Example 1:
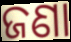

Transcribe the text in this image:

ଜଣା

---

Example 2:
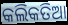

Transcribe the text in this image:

କଲିକତିଆ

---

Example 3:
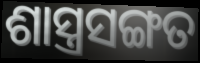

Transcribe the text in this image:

ଶାସ୍ତ୍ରସଙ୍ଗତ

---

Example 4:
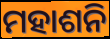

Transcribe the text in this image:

ମହାଶନି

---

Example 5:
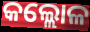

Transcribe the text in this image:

କଲ୍ଲୋଳ